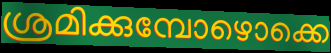
ശ്രമിക്കുമ്പോഴൊക്കെ